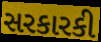
સરકારકી